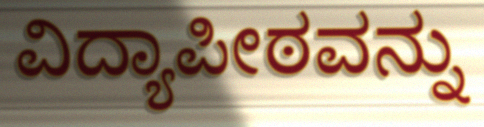
ವಿದ್ಯಾಪೀಠವನ್ನು